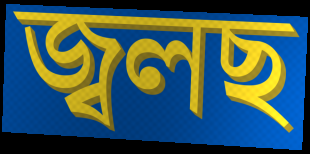
জ্বলছ